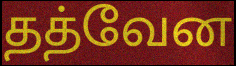
தத்வேன